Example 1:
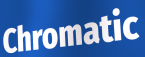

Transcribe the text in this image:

Chromatic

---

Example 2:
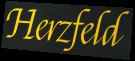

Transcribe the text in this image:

Herzfeld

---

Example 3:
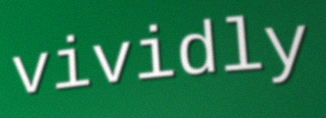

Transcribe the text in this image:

vividly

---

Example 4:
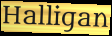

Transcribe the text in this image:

Halligan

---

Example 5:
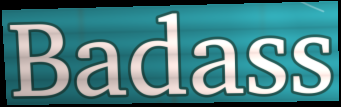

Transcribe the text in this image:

Badass